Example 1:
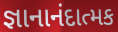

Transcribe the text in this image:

જ્ઞાનાનંદાત્મક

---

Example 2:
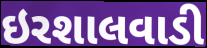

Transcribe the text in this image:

ઇરશાલવાડી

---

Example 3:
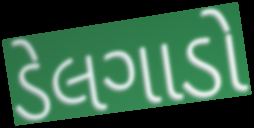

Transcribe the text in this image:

ડેલગાડો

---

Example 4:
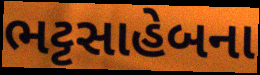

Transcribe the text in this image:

ભટ્ટસાહેબના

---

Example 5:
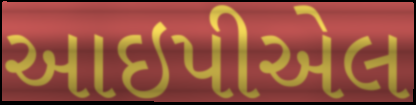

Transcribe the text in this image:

આઇપીએલ